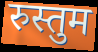
रुस्तुम